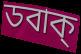
ডবাক্